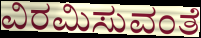
ವಿರಮಿಸುವಂತೆ